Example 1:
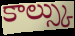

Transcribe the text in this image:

కాల్స్కు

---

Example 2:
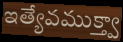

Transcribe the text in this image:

ఇత్యేవముక్త్వా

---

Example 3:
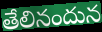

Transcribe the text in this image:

తేలినందున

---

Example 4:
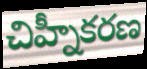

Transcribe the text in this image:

చిహ్నీకరణ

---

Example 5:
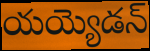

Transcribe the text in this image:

యయ్యెడన్